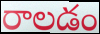
రాలడం